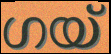
ഗയ്